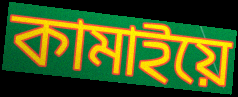
কামাইয়ে